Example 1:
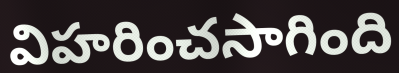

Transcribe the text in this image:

విహరించసాగింది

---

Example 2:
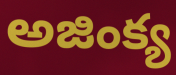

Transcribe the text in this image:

అజింక్య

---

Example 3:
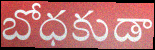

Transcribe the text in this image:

బోధకుడా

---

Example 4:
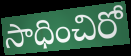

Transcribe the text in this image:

సాధించిరో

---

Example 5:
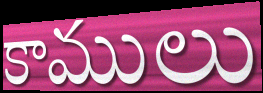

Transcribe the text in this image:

కాములు